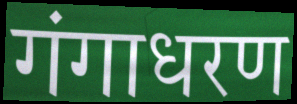
गंगाधरण